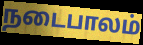
நடைபாலம்